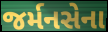
જર્મનસેના